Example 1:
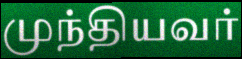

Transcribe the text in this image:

முந்தியவர்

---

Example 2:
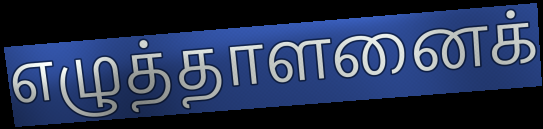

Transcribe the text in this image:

எழுத்தாளனைக்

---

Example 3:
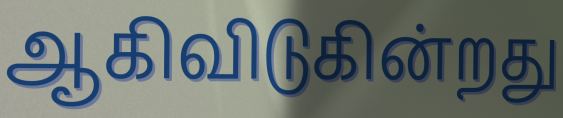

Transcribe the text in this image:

ஆகிவிடுகின்றது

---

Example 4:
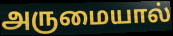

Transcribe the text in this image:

அருமையால்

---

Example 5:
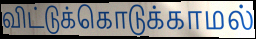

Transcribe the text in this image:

விட்டுக்கொடுக்காமல்